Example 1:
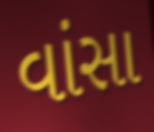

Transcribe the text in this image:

વાંસા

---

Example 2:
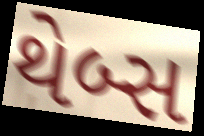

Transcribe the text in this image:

થેબ્સ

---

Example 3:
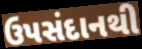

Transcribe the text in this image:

ઉપસંદાનથી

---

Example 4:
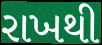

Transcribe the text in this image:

રાખથી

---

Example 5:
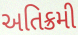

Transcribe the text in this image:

અતિક્રમી